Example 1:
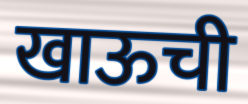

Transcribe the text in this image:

खाऊची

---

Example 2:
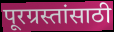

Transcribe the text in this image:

पूरग्रस्तांसाठी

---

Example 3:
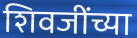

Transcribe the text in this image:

शिवजींच्या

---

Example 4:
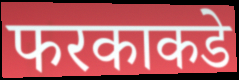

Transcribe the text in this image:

फरकाकडे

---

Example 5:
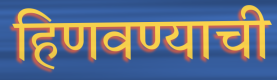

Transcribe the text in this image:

हिणवण्याची